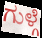
ಗುಳ್ಗೆ